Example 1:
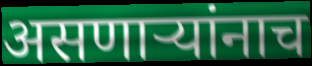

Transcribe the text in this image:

असणार्‍यांनाच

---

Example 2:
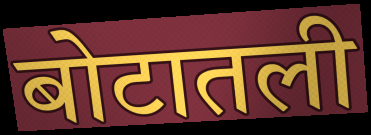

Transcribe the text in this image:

बोटातली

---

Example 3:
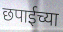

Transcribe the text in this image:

छपाईच्या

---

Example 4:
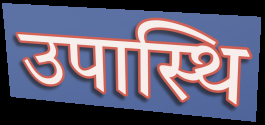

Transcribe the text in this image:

उपास्थि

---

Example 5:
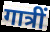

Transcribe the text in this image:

गात्रीं